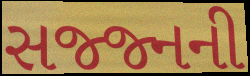
સજ્જ્નની